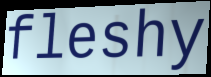
fleshy